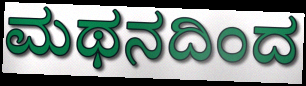
ಮಥನದಿಂದ